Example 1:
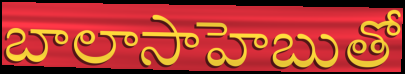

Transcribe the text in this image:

బాలాసాహెబుతో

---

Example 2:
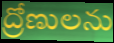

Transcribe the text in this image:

ద్రోణులను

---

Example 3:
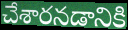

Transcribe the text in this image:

చేశారనడానికి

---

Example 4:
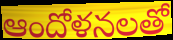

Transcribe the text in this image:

ఆందోళనలతో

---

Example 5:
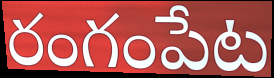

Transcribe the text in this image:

రంగంపేట